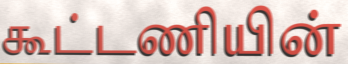
கூட்டணியின்